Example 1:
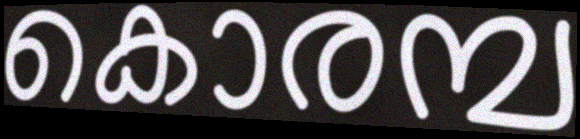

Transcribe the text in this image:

കൊരമ്പ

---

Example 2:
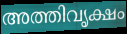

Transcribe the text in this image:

അത്തിവൃക്ഷം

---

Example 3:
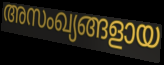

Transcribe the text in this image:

അസംഖ്യങ്ങളായ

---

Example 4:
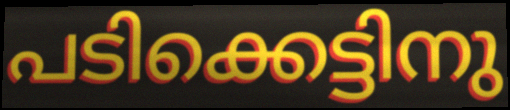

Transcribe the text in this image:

പടിക്കെട്ടിനു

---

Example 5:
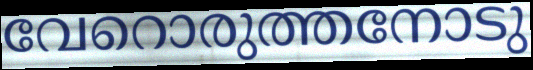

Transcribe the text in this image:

വേറൊരുത്തനോടു